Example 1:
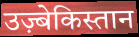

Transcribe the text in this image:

उज़्बेकिस्तान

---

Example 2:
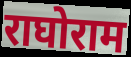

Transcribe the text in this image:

राघोराम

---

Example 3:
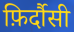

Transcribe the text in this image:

फ़िर्दौसी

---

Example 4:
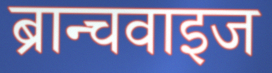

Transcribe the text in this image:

ब्रान्चवाइज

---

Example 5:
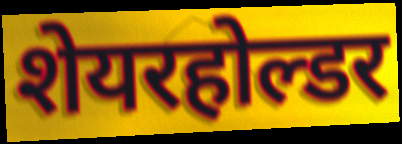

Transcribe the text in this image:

शेयरहोल्डर